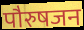
पौरुषजन